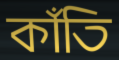
কাঁতি